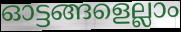
ഓട്ടങ്ങളെല്ലാം